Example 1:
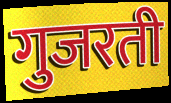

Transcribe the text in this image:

गुजरती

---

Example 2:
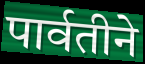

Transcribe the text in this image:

पार्वतीने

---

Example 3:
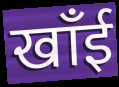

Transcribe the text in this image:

खाँई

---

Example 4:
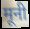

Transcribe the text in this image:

मूनी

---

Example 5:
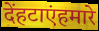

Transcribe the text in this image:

देंहटाएंहमारे